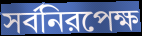
সর্বনিরপেক্ষ